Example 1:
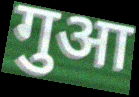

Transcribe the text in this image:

गुआ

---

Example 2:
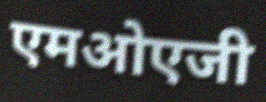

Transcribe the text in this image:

एमओएजी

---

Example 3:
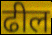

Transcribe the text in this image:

ढील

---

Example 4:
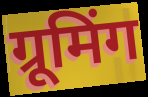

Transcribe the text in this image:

ग्रूमिंग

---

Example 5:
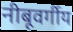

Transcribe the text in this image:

नीबूवर्गीय